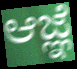
ಆಜ್ಞೆ